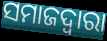
ସମାଜଦ୍ଵାରା